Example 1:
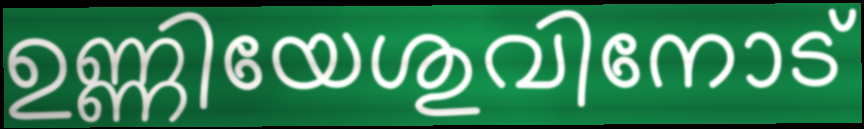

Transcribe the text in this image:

ഉണ്ണിയേശുവിനോട്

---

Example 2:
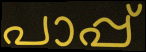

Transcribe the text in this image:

പാപ്പ്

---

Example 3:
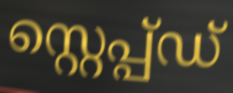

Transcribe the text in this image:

സ്റ്റെപ്പ്ഡ്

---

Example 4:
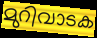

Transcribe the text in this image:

മുറിവാടക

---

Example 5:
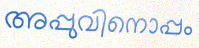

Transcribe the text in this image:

അപ്പുവിനൊപ്പം